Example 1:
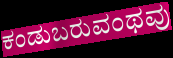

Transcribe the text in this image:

ಕಂಡುಬರುವಂಥವು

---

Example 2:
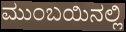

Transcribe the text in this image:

ಮುಂಬಯಿನಲ್ಲಿ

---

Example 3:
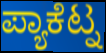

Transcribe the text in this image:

ಪ್ಯಾಕೆಟ್ನ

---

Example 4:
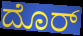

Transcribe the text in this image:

ದೊರ್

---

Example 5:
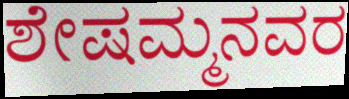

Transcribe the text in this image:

ಶೇಷಮ್ಮನವರ